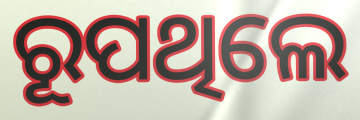
ରୂପଥିଲେ